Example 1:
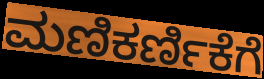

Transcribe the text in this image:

ಮಣಿಕರ್ಣಿಕೆಗೆ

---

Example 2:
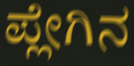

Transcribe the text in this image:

ಪ್ಲೇಗಿನ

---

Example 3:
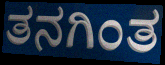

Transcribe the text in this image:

ತನಗಿಂತ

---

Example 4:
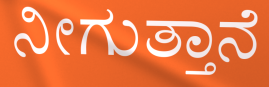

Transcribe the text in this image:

ನೀಗುತ್ತಾನೆ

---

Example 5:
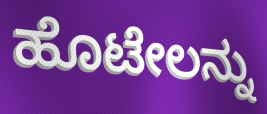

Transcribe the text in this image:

ಹೊಟೇಲನ್ನು